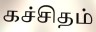
கச்சிதம்